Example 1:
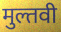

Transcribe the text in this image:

मुल्तवी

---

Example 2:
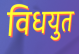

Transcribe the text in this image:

विधयुत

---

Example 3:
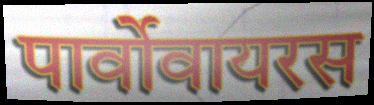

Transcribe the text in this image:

पार्वोवायरस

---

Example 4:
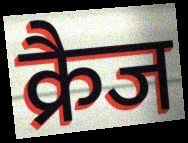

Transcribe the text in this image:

क्रैज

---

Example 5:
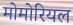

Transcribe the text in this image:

मोमोरियल